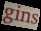
gins